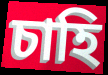
চাহি